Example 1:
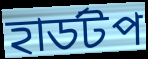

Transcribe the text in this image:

হার্ডটপ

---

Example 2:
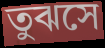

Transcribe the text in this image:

তুঝসে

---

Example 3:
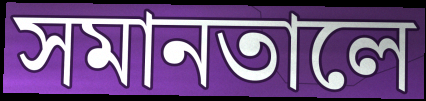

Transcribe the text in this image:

সমানতালে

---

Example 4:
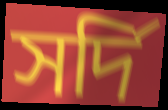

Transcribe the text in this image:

সর্দি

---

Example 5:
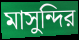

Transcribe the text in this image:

মাসুন্দির